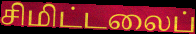
சிமிட்டலைப்